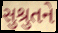
સુશ્રુતને